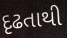
દૃઢતાથી